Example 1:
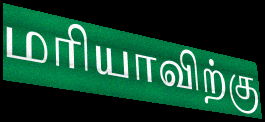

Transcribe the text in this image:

மரியாவிற்கு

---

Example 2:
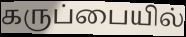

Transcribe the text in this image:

கருப்பையில்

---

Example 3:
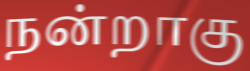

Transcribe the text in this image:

நன்றாகு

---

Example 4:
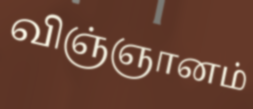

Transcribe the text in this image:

விஞ்ஞானம்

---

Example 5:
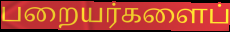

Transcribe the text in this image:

பறையர்களைப்